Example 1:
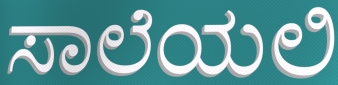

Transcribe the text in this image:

ಸಾಲೆಯಲಿ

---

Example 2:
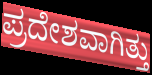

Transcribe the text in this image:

ಪ್ರದೇಶವಾಗಿತ್ತು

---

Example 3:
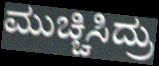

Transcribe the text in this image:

ಮುಚ್ಚಿಸಿದ್ರು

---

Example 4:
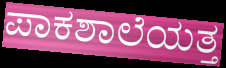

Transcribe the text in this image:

ಪಾಕಶಾಲೆಯತ್ತ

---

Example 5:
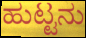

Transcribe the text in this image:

ಹುಟ್ಟನು